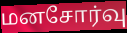
மனசோர்வு